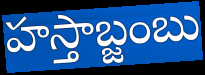
హస్తాబ్జంబు